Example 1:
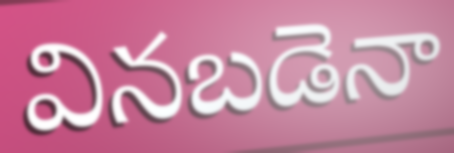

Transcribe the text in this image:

వినబడెనా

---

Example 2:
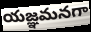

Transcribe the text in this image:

యజ్ఞమనగా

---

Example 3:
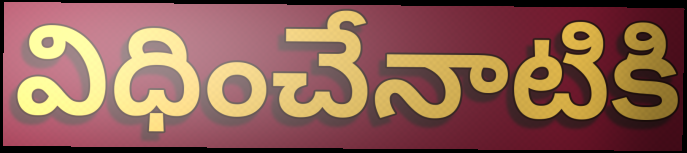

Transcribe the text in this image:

విధించేనాటికి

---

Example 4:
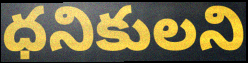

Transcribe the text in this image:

ధనికులని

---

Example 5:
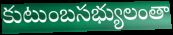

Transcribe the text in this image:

కుటుంబసభ్యులంతా